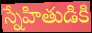
స్నేహితుడికి